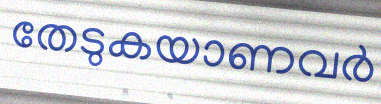
തേടുകയാണവർ